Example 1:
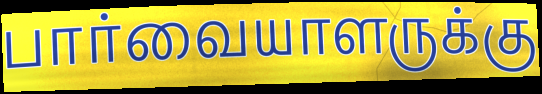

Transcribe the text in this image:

பார்வையாளருக்கு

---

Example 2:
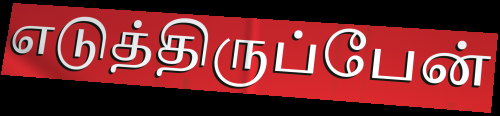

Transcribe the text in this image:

எடுத்திருப்பேன்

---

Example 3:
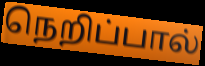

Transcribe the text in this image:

நெறிப்பால்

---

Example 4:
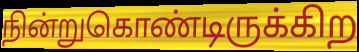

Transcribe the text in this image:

நின்றுகொண்டிருக்கிற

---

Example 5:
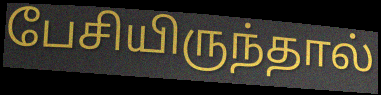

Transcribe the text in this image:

பேசியிருந்தால்